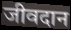
जीवदान